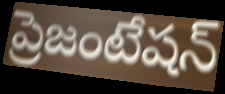
ప్రెజంటేషన్